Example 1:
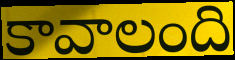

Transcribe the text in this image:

కావాలంది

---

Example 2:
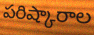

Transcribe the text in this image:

పరిష్కారాల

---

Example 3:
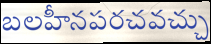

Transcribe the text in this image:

బలహీనపరచవచ్చు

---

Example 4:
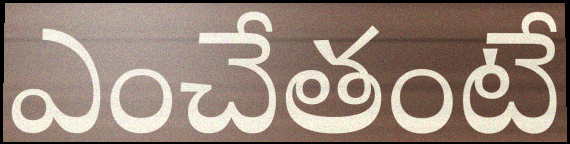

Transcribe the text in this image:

ఎంచేతంటే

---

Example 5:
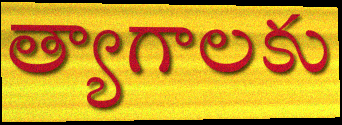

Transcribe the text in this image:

త్యాగాలకు